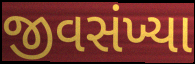
જીવસંખ્યા